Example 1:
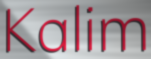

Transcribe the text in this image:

Kalim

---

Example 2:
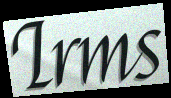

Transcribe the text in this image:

Irms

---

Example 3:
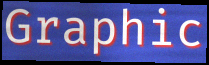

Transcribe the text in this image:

Graphic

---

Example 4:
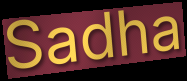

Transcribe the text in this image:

Sadha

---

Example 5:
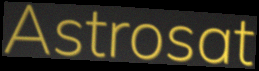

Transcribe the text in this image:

Astrosat